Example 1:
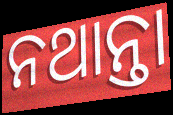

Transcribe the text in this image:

ନଥାନ୍ତା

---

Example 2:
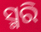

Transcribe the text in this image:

ସ୍ମରି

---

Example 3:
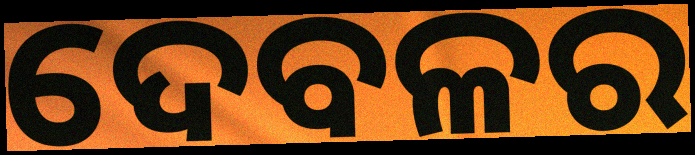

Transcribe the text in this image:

ଦେବଳର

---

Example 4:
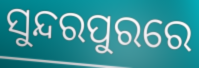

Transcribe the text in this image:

ସୁନ୍ଦରପୁରରେ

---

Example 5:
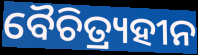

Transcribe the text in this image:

ବୈଚିତ୍ର୍ୟହୀନ